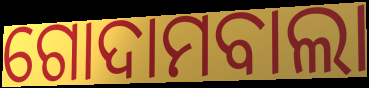
ଗୋଦାମବାଲା